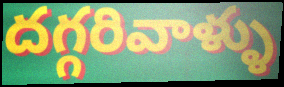
దగ్గరివాళ్ళు